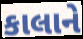
કાલાને